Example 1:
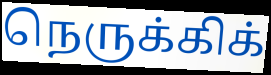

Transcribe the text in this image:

நெருக்கிக்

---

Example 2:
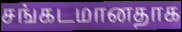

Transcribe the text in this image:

சங்கடமானதாக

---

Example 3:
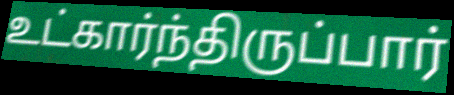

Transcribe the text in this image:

உட்கார்ந்திருப்பார்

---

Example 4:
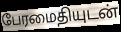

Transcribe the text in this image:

பேரமைதியுடன்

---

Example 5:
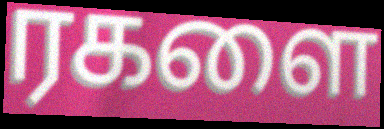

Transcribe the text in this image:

ரகளை